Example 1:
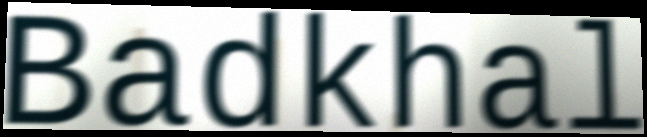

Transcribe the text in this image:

Badkhal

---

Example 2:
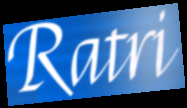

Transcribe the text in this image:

Ratri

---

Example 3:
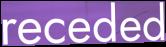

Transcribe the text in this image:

receded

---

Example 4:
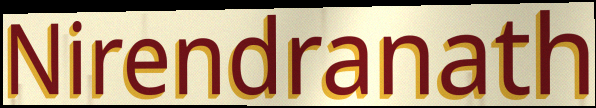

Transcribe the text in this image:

Nirendranath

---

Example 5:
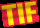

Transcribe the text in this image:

TIF